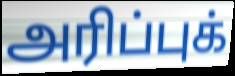
அரிப்புக்